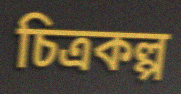
চিত্ৰকল্প